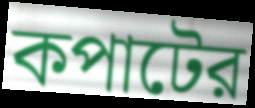
কপাটের